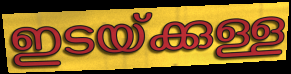
ഇടയ്‌ക്കുള്ള